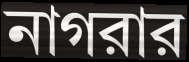
নাগরার